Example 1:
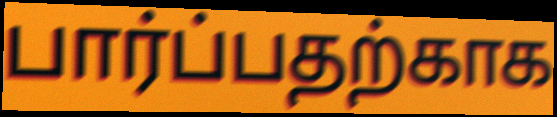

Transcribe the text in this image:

பார்ப்பதற்காக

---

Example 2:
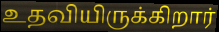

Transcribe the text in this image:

உதவியிருக்கிறார்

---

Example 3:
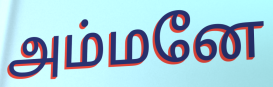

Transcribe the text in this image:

அம்மனே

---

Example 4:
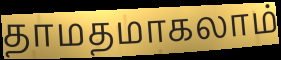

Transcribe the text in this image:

தாமதமாகலாம்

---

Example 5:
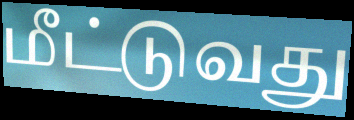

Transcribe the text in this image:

மீட்டுவது